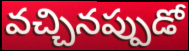
వచ్చినప్పుడో